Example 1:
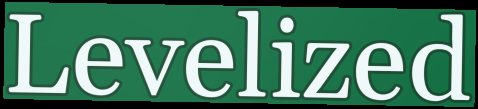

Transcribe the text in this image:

Levelized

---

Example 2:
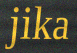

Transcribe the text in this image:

jika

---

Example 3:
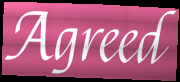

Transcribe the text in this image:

Agreed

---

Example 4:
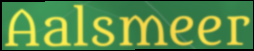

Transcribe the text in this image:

Aalsmeer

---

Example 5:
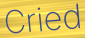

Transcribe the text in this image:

Cried